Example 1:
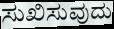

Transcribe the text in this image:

ಸುಖಿಸುವುದು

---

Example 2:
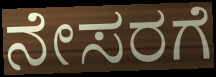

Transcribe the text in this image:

ನೇಸರಗೆ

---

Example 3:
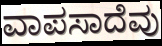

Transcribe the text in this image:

ವಾಪಸಾದೆವು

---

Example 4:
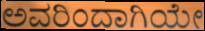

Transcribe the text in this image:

ಅವರಿಂದಾಗಿಯೇ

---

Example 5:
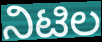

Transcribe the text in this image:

ನಿಟಿಲ